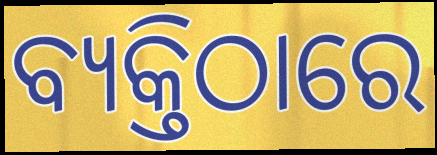
ବ୍ୟକ୍ତିଠାରେ